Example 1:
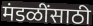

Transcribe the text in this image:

मंडळींसाठी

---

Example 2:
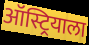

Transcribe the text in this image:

ऑस्ट्रियाला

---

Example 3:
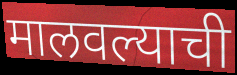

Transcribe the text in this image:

मालवल्याची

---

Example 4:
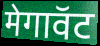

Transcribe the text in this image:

मेगावॅट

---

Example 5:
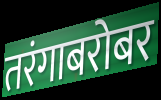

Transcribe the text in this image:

तरंगाबरोबर